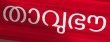
താവുഭൗ